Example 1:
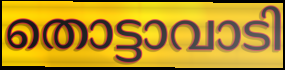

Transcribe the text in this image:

തൊട്ടാവാടി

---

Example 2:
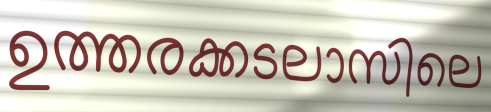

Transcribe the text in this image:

ഉത്തരക്കടലാസിലെ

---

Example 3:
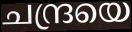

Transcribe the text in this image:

ചന്ദ്രയെ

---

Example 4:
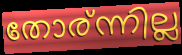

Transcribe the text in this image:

തോര്ന്നില്ല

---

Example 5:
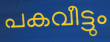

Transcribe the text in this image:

പകവീട്ടും